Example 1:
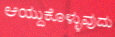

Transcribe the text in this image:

ಆಯ್ದುಕೊಳ್ಳುವುದು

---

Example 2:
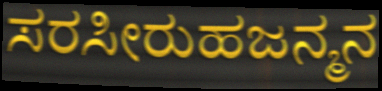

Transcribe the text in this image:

ಸರಸೀರುಹಜನ್ಮನ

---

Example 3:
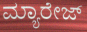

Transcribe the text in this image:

ಮ್ಯಾರೇಜ್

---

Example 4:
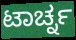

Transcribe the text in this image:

ಟಾರ್ಚ್ನ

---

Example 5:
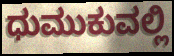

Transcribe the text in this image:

ಧುಮುಕುವಲ್ಲಿ